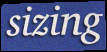
sizing